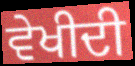
ਵੇਖੀਦੀ